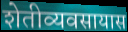
शेतीव्यवसायास